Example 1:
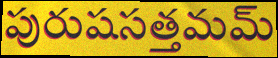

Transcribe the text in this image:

పురుషసత్తమమ్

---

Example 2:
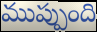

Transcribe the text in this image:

ముప్పుంది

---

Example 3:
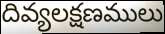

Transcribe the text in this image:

దివ్యలక్షణములు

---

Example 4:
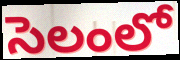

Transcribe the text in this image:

సెలంలో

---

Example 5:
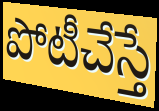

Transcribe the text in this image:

పోటీచేస్తే